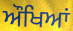
ਔਖਿਆਂ